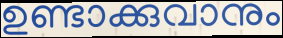
ഉണ്ടാക്കുവാനും